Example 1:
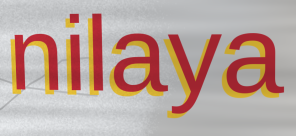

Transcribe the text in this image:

nilaya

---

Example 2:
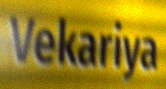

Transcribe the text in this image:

Vekariya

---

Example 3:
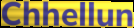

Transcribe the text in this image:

Chhellun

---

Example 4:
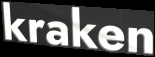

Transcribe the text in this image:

kraken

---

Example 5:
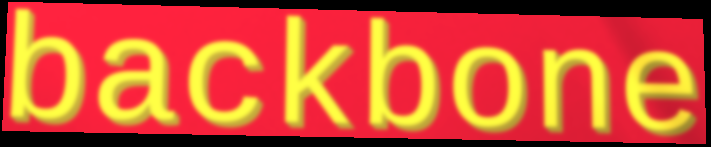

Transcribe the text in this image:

backbone